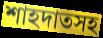
শাহদাতসহ